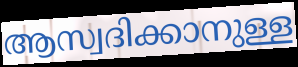
ആസ്വദിക്കാനുള്ള